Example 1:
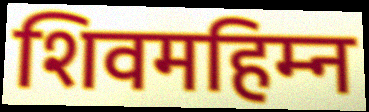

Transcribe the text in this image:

शिवमहिम्न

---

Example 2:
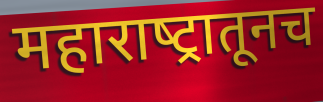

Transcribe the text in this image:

महाराष्ट्रातूनच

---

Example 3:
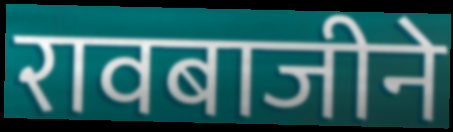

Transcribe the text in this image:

रावबाजीने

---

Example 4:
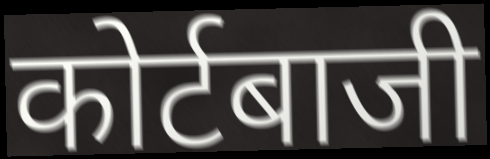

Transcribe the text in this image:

कोर्टबाजी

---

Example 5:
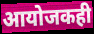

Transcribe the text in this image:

आयोजकही